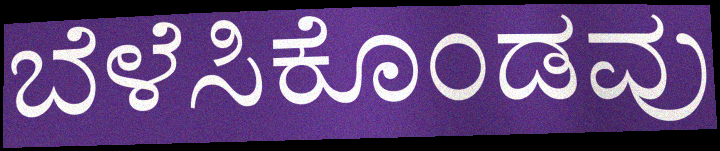
ಬೆಳೆಸಿಕೊಂಡವು